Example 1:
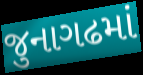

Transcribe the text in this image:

જુનાગઢમાં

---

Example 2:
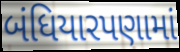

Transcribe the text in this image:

બંધિયારપણામાં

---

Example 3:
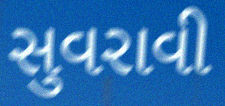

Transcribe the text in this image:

સુવરાવી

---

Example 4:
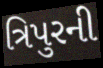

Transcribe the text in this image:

ત્રિપુરની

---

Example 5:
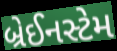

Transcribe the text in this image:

બ્રેઈનસ્ટેમ